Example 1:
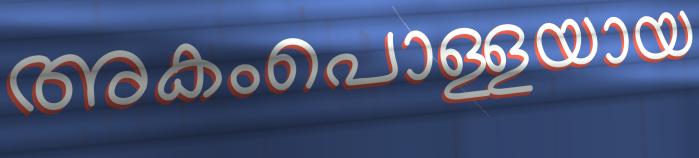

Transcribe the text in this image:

അകംപൊള്ളയായ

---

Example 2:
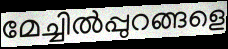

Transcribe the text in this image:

മേച്ചിൽപ്പുറങ്ങളെ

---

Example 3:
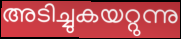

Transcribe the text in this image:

അടിച്ചുകയറ്റുന്നു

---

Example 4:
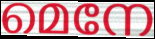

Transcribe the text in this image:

മെനേ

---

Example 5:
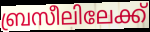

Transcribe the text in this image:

ബ്രസീലിലേക്ക്